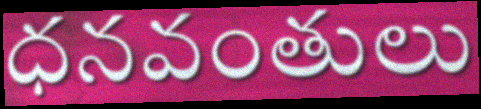
ధనవంతులు